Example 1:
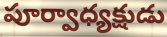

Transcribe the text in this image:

పూర్వాధ్యక్షుడు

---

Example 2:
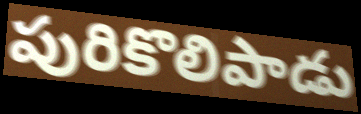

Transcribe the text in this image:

పురికొలిపాడు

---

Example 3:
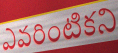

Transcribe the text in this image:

ఎవరింటికని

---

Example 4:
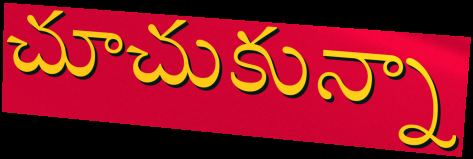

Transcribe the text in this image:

చూచుకున్నా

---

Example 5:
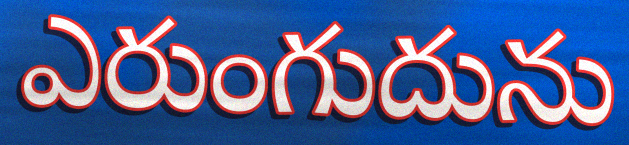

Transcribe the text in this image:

ఎరుంగుదును